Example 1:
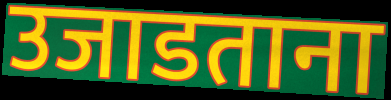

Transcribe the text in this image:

उजाडताना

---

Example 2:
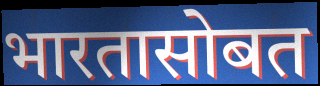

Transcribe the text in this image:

भारतासोबत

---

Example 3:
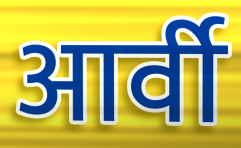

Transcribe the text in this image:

आर्वी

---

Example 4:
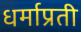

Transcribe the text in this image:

धर्माप्रती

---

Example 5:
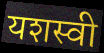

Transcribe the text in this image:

यशस्वी